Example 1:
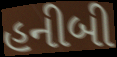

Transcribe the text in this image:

હનીબી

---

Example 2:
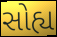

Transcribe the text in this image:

સોહ્ય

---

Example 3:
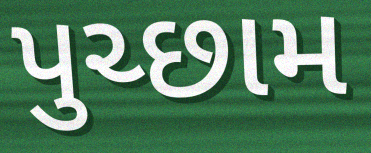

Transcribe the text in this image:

પુચ્છામ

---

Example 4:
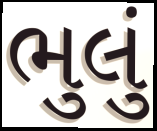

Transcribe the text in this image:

ભુલું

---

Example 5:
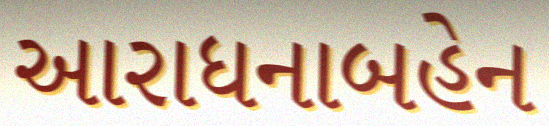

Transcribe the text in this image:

આરાધનાબહેન